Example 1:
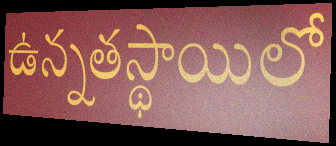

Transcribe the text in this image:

ఉన్నతస్థాయిలో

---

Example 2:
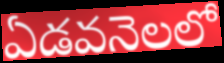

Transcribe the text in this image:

ఏడవనెలలో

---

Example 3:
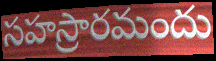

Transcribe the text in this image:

సహస్రారమందు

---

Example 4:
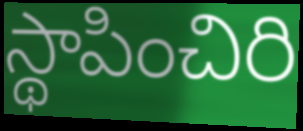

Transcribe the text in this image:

స్థాపించిరి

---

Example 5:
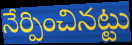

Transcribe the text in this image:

నేర్పించినట్టు